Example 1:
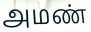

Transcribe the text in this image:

அமண்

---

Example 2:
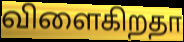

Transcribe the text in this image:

விளைகிறதா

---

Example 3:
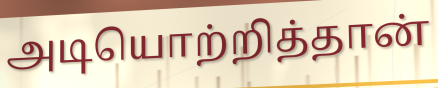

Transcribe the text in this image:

அடியொற்றித்தான்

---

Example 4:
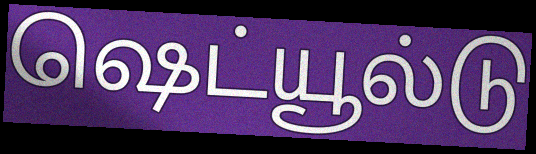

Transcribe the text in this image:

ஷெட்யூல்டு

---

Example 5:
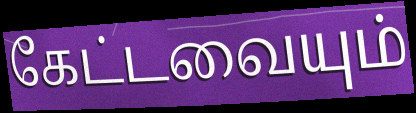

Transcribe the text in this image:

கேட்டவையும்